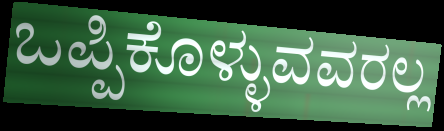
ಒಪ್ಪಿಕೊಳ್ಳುವವರಲ್ಲ